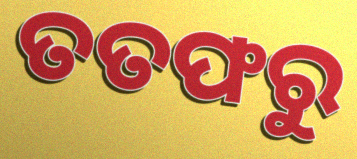
ତତଫରୁ